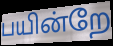
பயின்றே